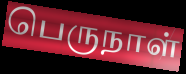
பெருநாள்